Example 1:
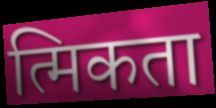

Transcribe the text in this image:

त्मिकता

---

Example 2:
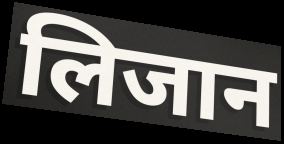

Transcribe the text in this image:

लिजान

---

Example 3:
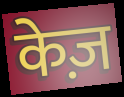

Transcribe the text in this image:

केज़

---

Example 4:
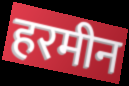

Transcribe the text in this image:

हरमीन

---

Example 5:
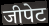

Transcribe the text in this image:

जीपेट